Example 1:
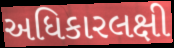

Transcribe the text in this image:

અધિકારલક્ષી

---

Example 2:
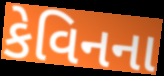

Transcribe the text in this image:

કેવિનના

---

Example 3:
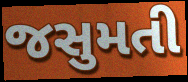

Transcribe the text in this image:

જસુમતી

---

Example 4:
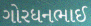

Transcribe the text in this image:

ગોરધનભાઈ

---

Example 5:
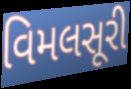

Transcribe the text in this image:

વિમલસૂરી